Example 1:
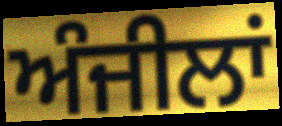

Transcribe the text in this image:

ਅੰਜੀਲਾਂ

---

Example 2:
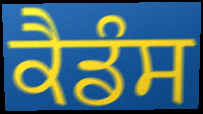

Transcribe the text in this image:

ਕੈਡੰਸ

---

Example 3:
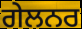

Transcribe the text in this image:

ਗੇਲਨਰ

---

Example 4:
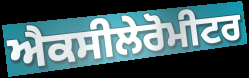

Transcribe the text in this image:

ਐਕਸੀਲੇਰੋਮੀਟਰ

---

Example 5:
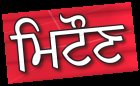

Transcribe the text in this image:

ਮਿਟੌਣ